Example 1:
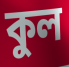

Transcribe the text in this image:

কুল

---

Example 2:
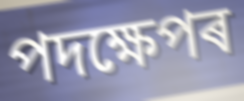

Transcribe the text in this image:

পদক্ষেপৰ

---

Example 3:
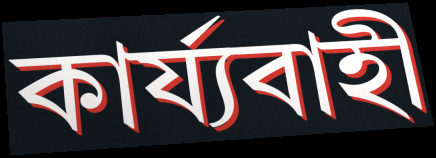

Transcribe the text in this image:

কাৰ্য্যবাহী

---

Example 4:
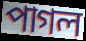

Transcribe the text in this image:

পাগল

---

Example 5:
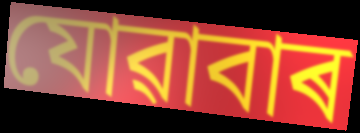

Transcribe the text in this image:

যোৱাবাৰ